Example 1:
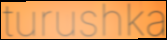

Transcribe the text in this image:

turushka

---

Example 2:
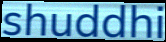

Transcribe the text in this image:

shuddhi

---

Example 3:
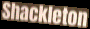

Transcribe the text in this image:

Shackleton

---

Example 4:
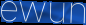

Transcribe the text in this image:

ewun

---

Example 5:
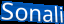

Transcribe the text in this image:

Sonali